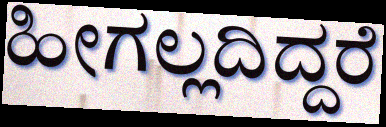
ಹೀಗಲ್ಲದಿದ್ದರೆ